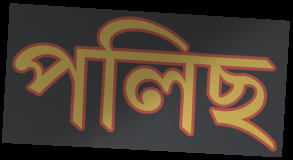
পলিছ